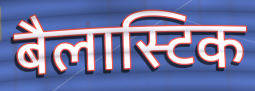
बैलास्टिक